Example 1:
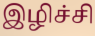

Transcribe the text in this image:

இழிச்சி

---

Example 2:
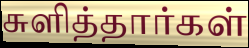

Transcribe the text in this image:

சுளித்தார்கள்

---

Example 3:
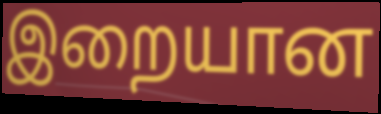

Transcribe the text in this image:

இறையான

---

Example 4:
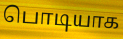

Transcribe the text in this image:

பொடியாக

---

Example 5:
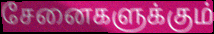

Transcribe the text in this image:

சேனைகளுக்கும்